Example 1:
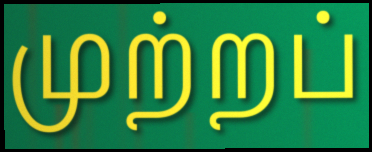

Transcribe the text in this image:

முற்றப்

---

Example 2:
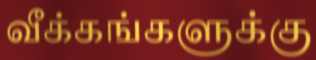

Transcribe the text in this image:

வீக்கங்களுக்கு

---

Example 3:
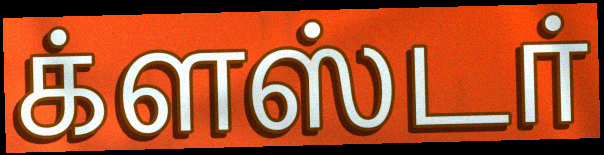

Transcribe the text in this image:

க்ளஸ்டர்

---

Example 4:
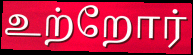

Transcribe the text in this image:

உற்றோர்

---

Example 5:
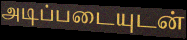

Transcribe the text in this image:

அடிப்படையுடன்